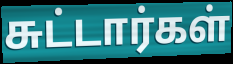
சுட்டார்கள்